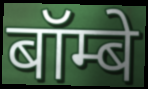
बॉम्बे